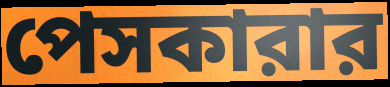
পেসকারার